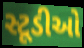
સ્ટૂડીઓ